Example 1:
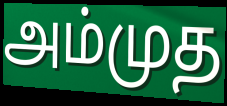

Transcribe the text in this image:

அம்முத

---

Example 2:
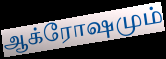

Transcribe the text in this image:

ஆக்ரோஷமும்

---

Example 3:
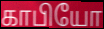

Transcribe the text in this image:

காபியோ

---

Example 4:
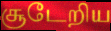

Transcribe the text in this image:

சூடேறிய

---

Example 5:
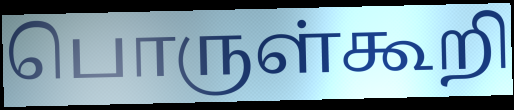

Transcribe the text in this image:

பொருள்கூறி